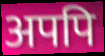
अपपि